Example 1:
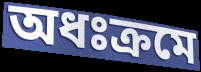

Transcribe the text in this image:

অধঃক্রমে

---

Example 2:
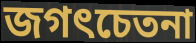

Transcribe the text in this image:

জগৎচেতনা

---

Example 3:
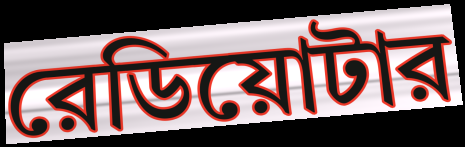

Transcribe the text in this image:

রেডিয়োটার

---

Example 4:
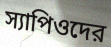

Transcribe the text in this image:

স্যাপিওদের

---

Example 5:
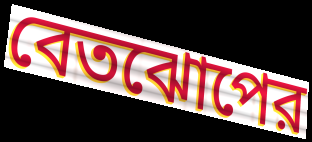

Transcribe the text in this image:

বেতঝোপের